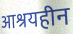
आश्रयहीन